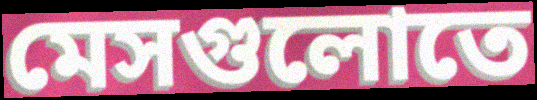
মেসগুলোতে